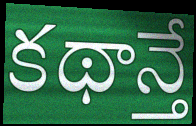
కథాన్తే